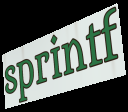
sprintf